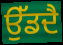
ਉੱਡਦੈ